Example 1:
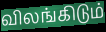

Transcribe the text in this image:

விலங்கிடும்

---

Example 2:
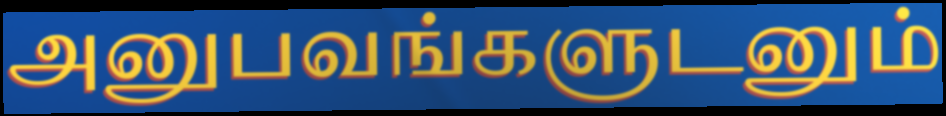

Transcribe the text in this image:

அனுபவங்களுடனும்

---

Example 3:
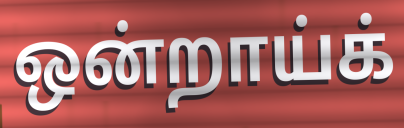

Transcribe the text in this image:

ஒன்றாய்க்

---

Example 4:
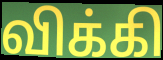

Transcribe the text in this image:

விக்கி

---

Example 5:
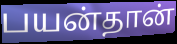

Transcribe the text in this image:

பயன்தான்